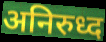
अनिरुध्द